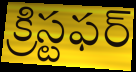
క్రిస్టఫర్